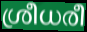
ശ്രീധരീ